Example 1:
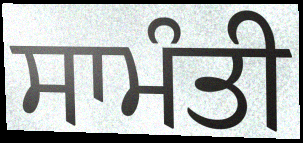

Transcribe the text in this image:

ਸਾਮੰਤੀ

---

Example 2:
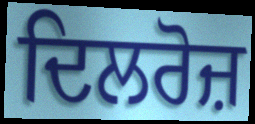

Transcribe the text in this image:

ਦਿਲਰੋਜ਼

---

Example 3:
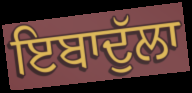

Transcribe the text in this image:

ਇਬਾਦੁੱਲਾ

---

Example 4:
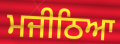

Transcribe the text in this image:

ਮਜੀਠਿਆ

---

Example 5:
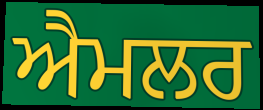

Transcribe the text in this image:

ਐਮਲਰ